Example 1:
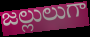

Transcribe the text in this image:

జల్లులుగా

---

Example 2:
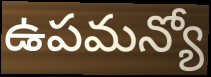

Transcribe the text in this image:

ఉపమన్యో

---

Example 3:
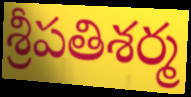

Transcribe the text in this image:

శ్రీపతిశర్మ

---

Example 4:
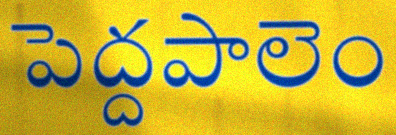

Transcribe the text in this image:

పెద్దపాలెం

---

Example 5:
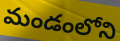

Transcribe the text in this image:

మండంలోని